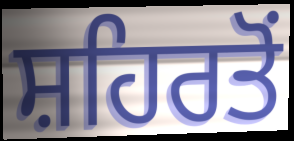
ਸ਼ਹਿਰਤੋਂ